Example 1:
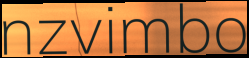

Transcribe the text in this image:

nzvimbo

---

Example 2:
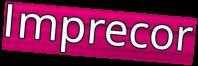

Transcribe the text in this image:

Imprecor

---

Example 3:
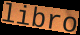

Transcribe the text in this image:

libro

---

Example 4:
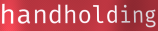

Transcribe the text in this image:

handholding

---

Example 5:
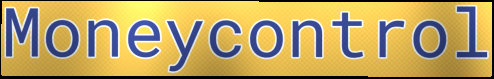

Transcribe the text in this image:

Moneycontrol